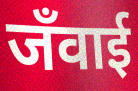
जँवाई